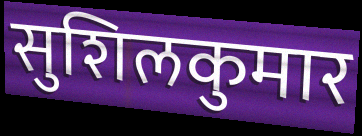
सुशिलकुमार